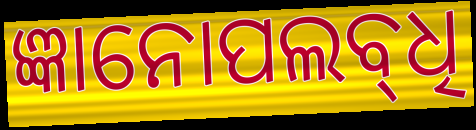
ଜ୍ଞାନୋପଲବ୍‌ଧି